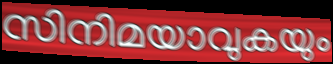
സിനിമയാവുകയും